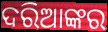
ଦରିଆଙ୍କର